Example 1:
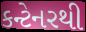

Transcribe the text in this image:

કન્ટેનરથી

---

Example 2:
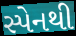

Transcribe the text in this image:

સ્પેનથી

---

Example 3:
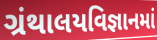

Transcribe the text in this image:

ગ્રંથાલયવિજ્ઞાનમાં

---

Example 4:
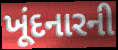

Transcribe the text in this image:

ખૂંદનારની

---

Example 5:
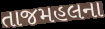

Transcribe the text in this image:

તાજમહલના